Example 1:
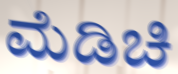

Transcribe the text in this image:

ಮೆಡಿಚಿ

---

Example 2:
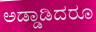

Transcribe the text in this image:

ಅಡ್ಡಾಡಿದರೂ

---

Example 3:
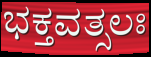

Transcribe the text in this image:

ಭಕ್ತವತ್ಸಲಃ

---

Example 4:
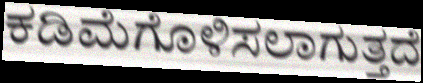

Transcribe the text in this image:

ಕಡಿಮೆಗೊಳಿಸಲಾಗುತ್ತದೆ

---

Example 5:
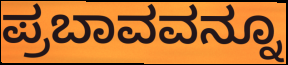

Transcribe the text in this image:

ಪ್ರಬಾವವನ್ನೂ